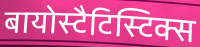
बायोस्टैटिस्टिक्स